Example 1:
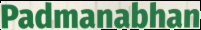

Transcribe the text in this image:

Padmanabhan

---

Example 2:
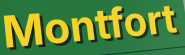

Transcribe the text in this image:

Montfort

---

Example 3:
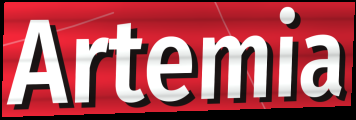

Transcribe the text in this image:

Artemia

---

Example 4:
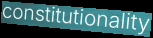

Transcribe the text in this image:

constitutionality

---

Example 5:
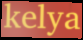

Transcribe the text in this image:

kelya